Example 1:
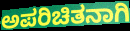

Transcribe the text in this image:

ಅಪರಿಚಿತನಾಗಿ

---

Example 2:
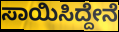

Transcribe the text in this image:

ಸಾಯಿಸಿದ್ದೇನೆ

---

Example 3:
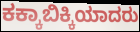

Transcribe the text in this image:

ಕಕ್ಕಾಬಿಕ್ಕಿಯಾದರು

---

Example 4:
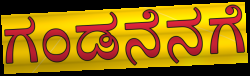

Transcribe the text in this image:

ಗಂಡನೆನಗೆ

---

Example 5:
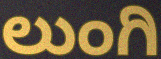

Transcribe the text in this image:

ಲುಂಗಿ